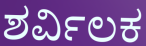
ಶರ್ವಿಲಕ